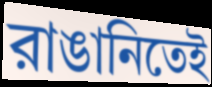
রাঙানিতেই